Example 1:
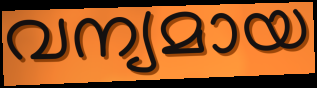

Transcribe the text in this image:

വന്യമായ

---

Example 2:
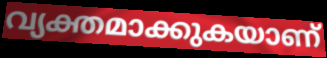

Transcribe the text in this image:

വ്യക്തമാക്കുകയാണ്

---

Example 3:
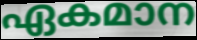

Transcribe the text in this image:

ഏകമാന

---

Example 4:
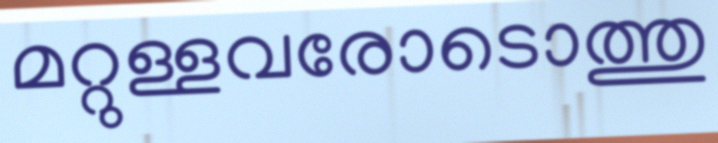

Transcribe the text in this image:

മറ്റുള്ളവരോടൊത്തു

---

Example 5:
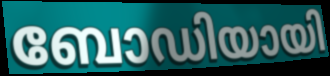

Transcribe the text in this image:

ബോഡിയായി